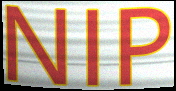
NIP